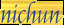
nichun